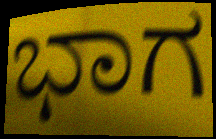
ಭಾಗ